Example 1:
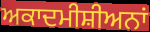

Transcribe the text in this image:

ਅਕਾਦਮੀਸ਼ੀਅਨਾਂ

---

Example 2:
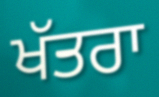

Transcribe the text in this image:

ਖੱਤਰਾ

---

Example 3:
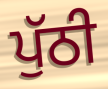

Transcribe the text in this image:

ਪੁੱਠੀ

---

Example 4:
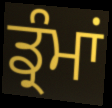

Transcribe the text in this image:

ਡ੍ਰੰਮਾਂ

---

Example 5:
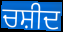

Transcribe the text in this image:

ਚਸ਼ੀਦ